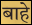
बाहे